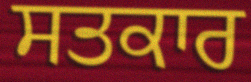
ਸਤਕਾਰ